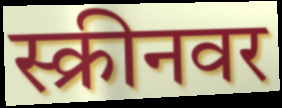
स्क्रीनवर